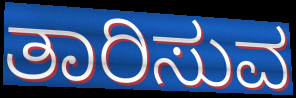
ತಾರಿಸುವ